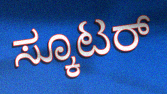
ಸ್ಕೂಟರ್